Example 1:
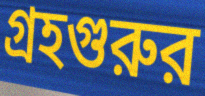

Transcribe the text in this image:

গ্রহগুরুর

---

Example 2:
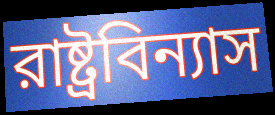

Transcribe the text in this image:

রাষ্ট্রবিন্যাস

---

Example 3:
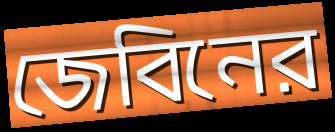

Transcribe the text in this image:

জেবিনের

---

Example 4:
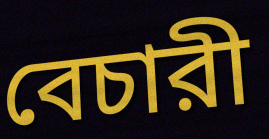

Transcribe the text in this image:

বেচারী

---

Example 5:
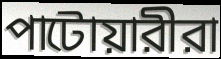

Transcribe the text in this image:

পাটোয়ারীরা